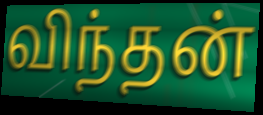
விந்தன்